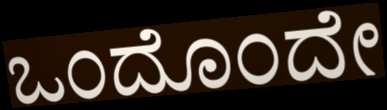
ಒಂದೊಂದೇ